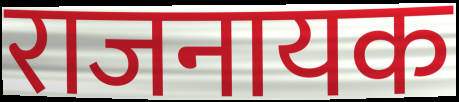
राजनायक